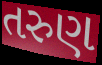
તરુણ